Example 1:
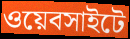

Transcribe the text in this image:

ওয়েবসাইটে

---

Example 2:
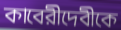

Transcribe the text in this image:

কাবেরীদেবীকে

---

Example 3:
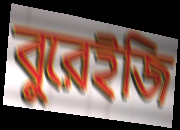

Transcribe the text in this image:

বুরেইজি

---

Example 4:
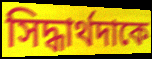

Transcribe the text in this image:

সিদ্ধার্থদাকে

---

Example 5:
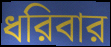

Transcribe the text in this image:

ধরিবার